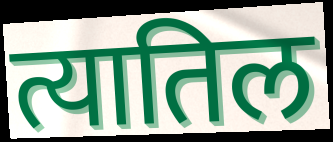
त्यातिल